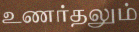
உணர்தலும்